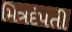
મિત્રદંપતી